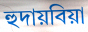
হুদায়বিয়া